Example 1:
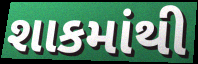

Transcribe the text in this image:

શાકમાંથી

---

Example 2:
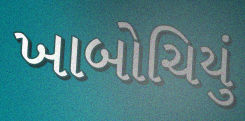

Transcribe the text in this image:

ખાબોચિયું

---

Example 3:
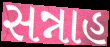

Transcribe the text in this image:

સન્નાહ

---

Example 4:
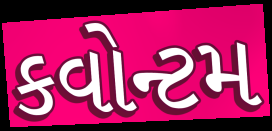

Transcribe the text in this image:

કવોન્ટમ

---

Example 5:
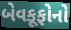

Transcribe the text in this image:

બેવકૂફોનો